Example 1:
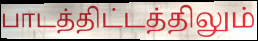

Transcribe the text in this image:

பாடத்திட்டத்திலும்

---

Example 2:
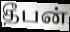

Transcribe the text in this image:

தீபன்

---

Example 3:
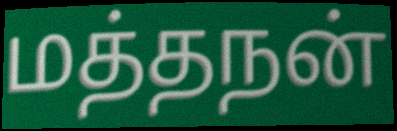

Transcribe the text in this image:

மத்தநன்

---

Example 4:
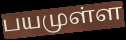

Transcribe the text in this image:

பயமுள்ள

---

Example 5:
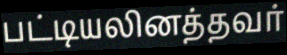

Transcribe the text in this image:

பட்டியலினத்தவர்